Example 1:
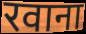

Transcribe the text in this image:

रवाना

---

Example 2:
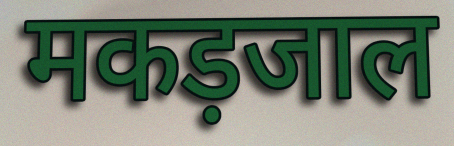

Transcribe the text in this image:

मकड़जाल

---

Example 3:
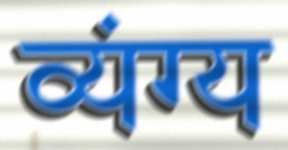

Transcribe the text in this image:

व्यंग्य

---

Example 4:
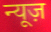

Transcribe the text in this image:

न्यूज़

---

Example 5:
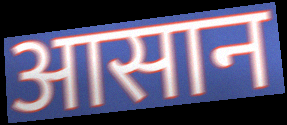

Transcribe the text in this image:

आसान